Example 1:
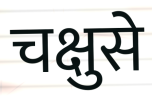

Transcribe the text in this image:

चक्षुसे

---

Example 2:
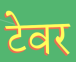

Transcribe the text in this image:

टेवर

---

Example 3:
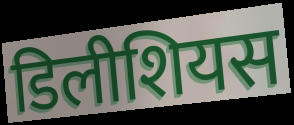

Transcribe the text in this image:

डिलीशियस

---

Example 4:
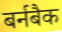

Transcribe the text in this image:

बर्नबैक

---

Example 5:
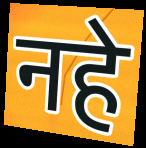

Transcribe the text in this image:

नहे